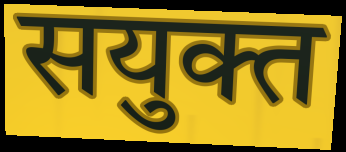
सयुक्त